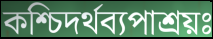
কশ্চিদর্থব্যপাশ্রয়ঃ